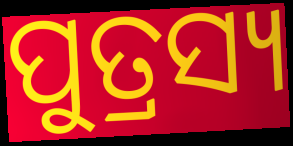
ପୁତ୍ରସ୍ୟ